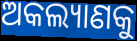
ଅକଲ୍ୟାଣକୁ